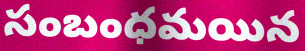
సంబంధమయిన